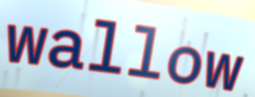
wallow